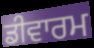
ਡੀਵਾਰਮ